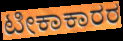
ಟೀಕಾಕಾರರ